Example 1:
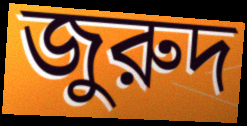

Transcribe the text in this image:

জুরুদ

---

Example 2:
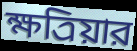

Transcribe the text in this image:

ক্ষত্রিয়ার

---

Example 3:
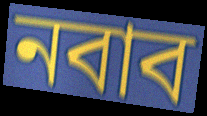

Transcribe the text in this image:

নবাব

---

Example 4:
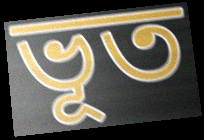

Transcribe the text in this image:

ভূত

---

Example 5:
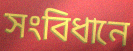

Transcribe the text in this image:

সংবিধানে